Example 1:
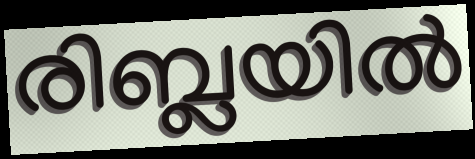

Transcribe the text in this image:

രിബ്ലയിൽ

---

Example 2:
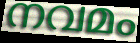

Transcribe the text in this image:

നവമം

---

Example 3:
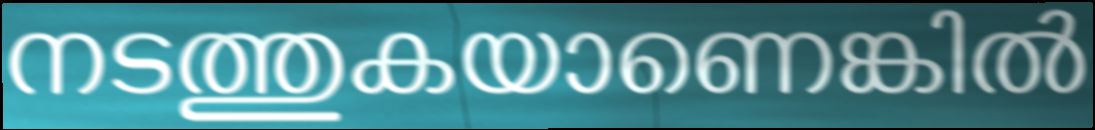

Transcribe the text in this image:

നടത്തുകയാണെങ്കിൽ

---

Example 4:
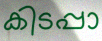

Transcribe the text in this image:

കിടപ്പാ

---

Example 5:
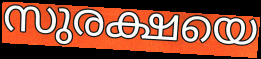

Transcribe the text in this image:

സുരക്ഷയെ